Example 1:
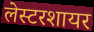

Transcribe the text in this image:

लेस्टरशायर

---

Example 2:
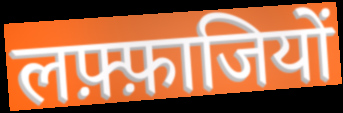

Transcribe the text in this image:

लफ़्फ़ाजियों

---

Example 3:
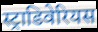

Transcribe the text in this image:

स्ट्राडिवेरियस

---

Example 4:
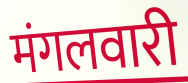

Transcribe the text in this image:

मंगलवारी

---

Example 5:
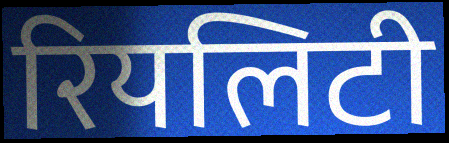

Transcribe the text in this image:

रियलिटी